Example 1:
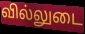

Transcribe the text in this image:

வில்லுடை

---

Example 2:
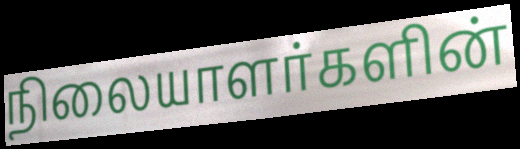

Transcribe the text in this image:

நிலையாளர்களின்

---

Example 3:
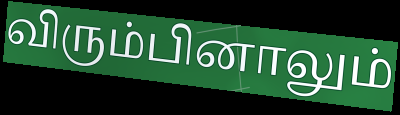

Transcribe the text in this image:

விரும்பினாலும்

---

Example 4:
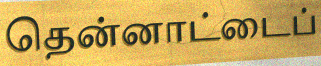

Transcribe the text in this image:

தென்னாட்டைப்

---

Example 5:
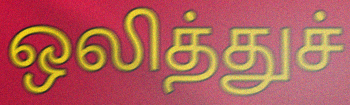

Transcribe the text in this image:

ஒலித்துச்